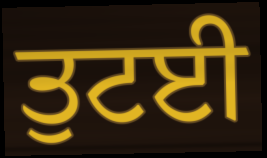
ਤੁਟਈ